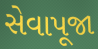
સેવાપૂજા